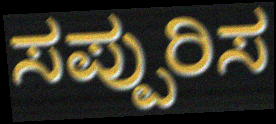
ಸಪ್ಪುರಿಸ